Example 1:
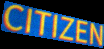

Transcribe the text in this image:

CITIZEN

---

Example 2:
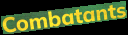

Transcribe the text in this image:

Combatants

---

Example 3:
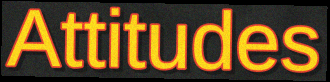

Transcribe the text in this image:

Attitudes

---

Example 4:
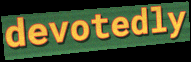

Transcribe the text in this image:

devotedly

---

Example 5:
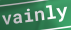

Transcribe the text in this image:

vainly